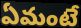
ఏమంటే